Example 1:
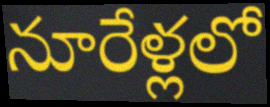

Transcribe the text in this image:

నూరేళ్లలో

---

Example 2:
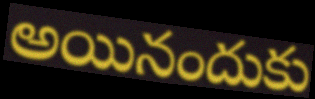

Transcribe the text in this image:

అయినందుకు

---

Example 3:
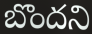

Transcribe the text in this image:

బొందని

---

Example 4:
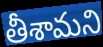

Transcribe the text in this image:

తీశామని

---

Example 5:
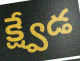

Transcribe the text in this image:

క్ష్వేడ